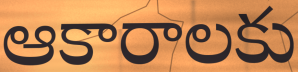
ఆకారాలకు